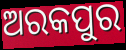
ଅରକପୁର